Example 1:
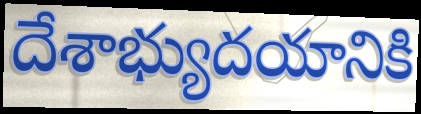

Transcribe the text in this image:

దేశాభ్యుదయానికి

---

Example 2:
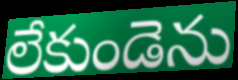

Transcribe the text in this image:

లేకుండెను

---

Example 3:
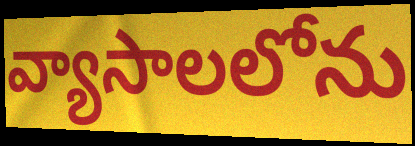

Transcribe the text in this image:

వ్యాసాలలోను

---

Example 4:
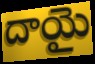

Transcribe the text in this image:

దాయై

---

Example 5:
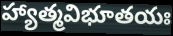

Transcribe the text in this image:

హ్యాత్మవిభూతయః